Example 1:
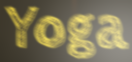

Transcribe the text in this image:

Yoga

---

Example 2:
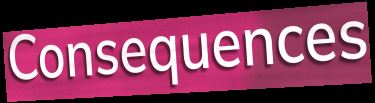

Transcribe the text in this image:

Consequences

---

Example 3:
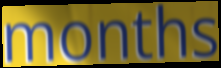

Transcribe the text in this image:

months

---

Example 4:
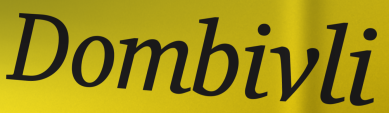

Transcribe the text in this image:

Dombivli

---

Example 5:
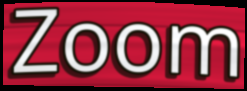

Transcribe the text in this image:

Zoom